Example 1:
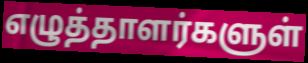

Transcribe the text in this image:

எழுத்தாளர்களுள்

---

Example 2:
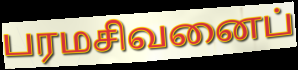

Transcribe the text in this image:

பரமசிவனைப்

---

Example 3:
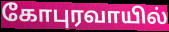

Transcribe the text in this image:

கோபுரவாயில்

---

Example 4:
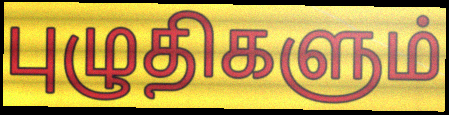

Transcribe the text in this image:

புழுதிகளும்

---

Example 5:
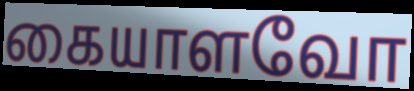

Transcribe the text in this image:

கையாளவோ